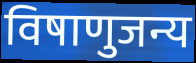
विषाणुजन्य